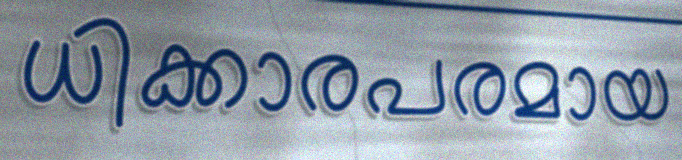
ധിക്കാരപരമായ